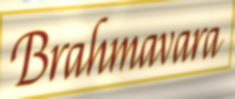
Brahmavara